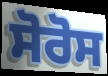
ਸੋਰੋਸ